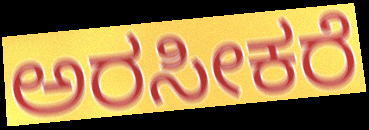
ಅರಸೀಕರೆ